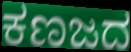
ಕಣಜದ